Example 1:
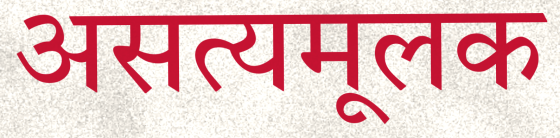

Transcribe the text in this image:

असत्यमूलक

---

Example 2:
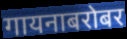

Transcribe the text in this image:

गायनाबरोबर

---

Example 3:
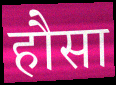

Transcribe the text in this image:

हौसा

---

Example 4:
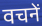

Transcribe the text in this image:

वचनें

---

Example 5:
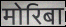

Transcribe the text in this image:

मोरिबा